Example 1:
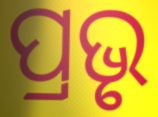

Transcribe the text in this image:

ପ୍ରଭୃ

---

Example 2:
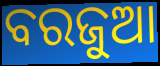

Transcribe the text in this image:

ବରଜୁଆ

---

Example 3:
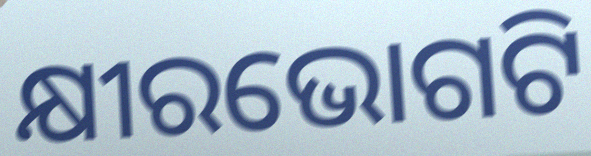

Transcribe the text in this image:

କ୍ଷୀରଭୋଗଟି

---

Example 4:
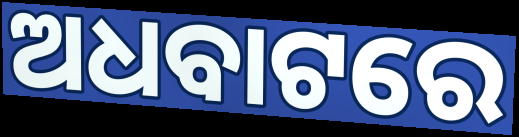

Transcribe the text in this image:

ଅଧବାଟରେ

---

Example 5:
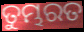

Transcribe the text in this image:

ତୁମ୍ଭରତ